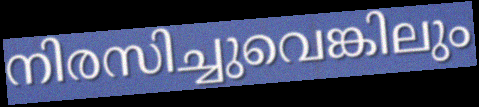
നിരസിച്ചുവെങ്കിലും